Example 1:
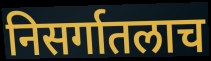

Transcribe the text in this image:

निसर्गातलाच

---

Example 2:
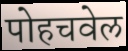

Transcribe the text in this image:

पोहचवेल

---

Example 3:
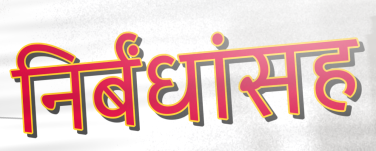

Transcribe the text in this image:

निर्बंधांसह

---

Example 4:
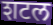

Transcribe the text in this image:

शटल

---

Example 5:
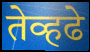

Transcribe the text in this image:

तेव्हढे